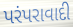
પરંપરાવાદી